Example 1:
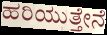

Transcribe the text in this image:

ಹರಿಯುತ್ತೇನೆ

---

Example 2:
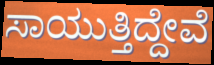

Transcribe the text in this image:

ಸಾಯುತ್ತಿದ್ದೇವೆ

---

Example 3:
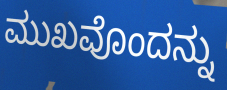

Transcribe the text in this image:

ಮುಖವೊಂದನ್ನು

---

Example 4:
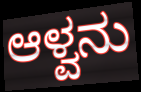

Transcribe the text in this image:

ಆಳ್ವನು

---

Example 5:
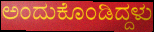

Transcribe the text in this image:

ಅಂದುಕೊಂಡಿದ್ದಳು